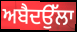
ਅਬੈਦਉੱਲਾ